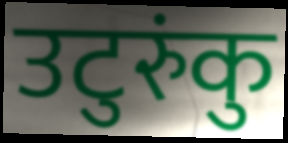
उटुरुंकु